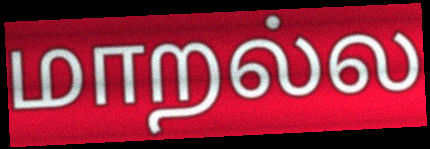
மாறல்ல